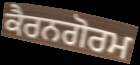
ਕੈਰਨਗੋਰਮ